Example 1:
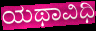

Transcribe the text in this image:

ಯಥಾವಿಧಿ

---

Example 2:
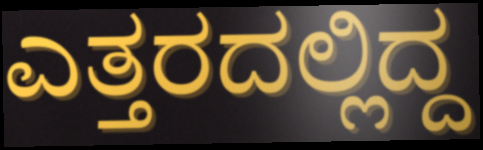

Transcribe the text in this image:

ಎತ್ತರದಲ್ಲಿದ್ದ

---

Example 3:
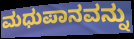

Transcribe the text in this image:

ಮಧುಪಾನವನ್ನು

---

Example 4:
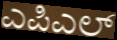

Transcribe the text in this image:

ಎಪಿಎಲ್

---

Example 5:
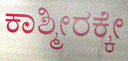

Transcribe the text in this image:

ಕಾಶ್ಮೀರಕ್ಕೇ